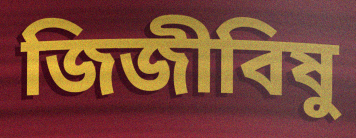
জিজীবিষু